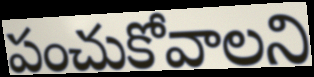
పంచుకోవాలని